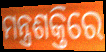
ମନ୍ତ୍ରଶକ୍ତିରେ